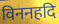
विननहदि